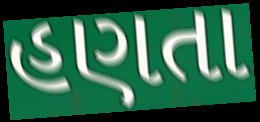
હણતા